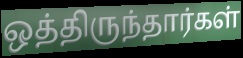
ஒத்திருந்தார்கள்